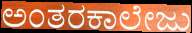
ಅಂತರಕಾಲೇಜು